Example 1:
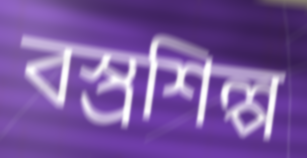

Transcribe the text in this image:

বস্ত্রশিল্প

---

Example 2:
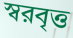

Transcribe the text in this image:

স্বরবৃত্ত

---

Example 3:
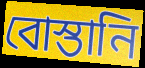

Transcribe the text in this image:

বোস্তানি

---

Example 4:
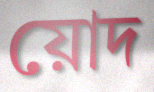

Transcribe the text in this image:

য়োদ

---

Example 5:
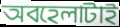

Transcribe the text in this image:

অবহেলাটাই